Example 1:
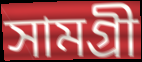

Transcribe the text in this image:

সামগ্রী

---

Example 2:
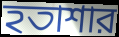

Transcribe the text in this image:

হতাশার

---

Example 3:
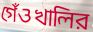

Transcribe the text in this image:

গেঁওখালির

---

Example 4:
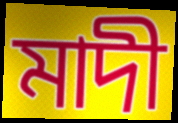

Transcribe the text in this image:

মাদী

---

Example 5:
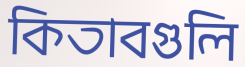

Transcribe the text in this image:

কিতাবগুলি